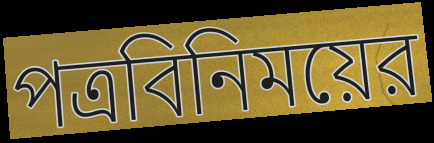
পত্রবিনিময়ের